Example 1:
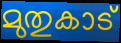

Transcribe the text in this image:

മുതുകാട്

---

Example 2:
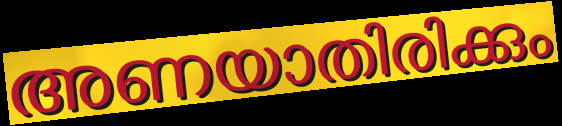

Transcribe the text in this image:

അണയാതിരിക്കും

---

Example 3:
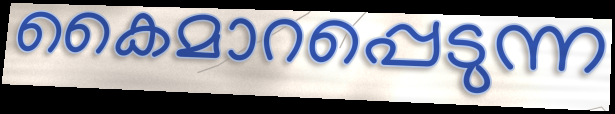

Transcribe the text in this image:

കൈമാറപ്പെടുന്ന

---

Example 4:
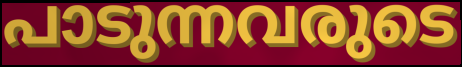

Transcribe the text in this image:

പാടുന്നവരുടെ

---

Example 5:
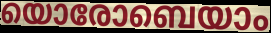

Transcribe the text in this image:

യൊരോബെയാം